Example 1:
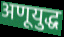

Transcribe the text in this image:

अणूयुद्ध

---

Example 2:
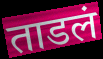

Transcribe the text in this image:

ताडलं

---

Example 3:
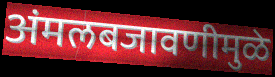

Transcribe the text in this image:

अंमलबजावणीमुळे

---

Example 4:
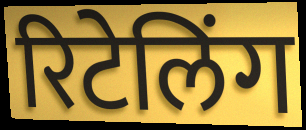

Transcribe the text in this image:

रिटेलिंग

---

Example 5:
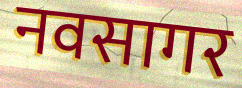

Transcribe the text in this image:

नवसागर